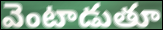
వెంటాడుతూ